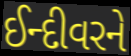
ઈન્દીવરને